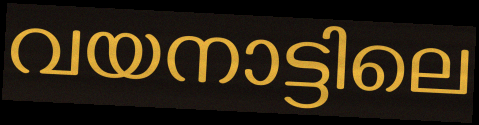
വയനാട്ടിലെ